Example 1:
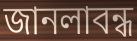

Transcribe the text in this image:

জানলাবন্ধ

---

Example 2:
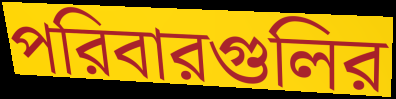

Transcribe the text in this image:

পরিবারগুলির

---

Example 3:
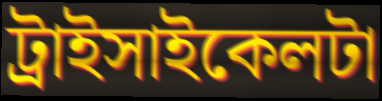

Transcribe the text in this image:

ট্রাইসাইকেলটা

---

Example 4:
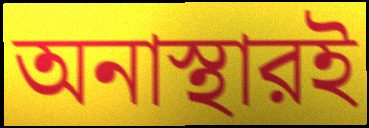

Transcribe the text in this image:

অনাস্থারই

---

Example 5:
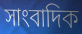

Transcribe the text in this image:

সাংবাদিক